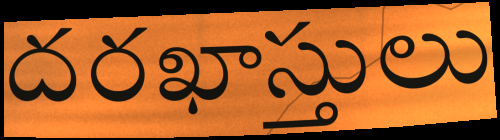
దరఖాస్తులు